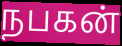
நபகன்